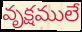
వృక్షములే